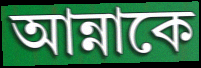
আন্নাকে